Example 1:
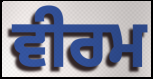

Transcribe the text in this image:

ਵੀਰਮ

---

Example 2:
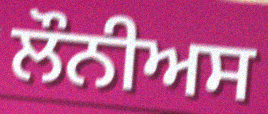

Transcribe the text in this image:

ਲੌਨੀਅਸ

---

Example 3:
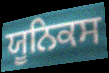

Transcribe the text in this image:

ਯੂਨਿਕਸ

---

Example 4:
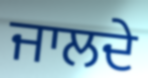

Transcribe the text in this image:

ਜਾਲਦੇ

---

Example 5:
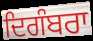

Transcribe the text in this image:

ਦਿਗੰਬਰਾ